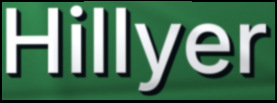
Hillyer